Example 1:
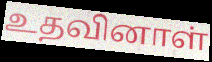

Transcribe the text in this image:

உதவினாள்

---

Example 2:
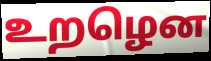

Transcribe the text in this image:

உறழென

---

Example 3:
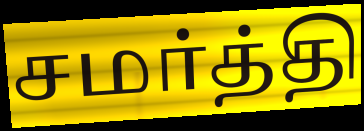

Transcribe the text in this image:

சமர்த்தி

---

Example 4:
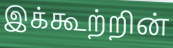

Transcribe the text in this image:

இக்கூற்றின்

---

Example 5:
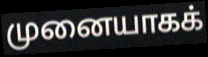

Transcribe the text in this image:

முனையாகக்